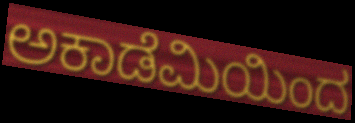
ಅಕಾಡೆಮಿಯಿಂದ